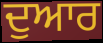
ਦੁਆਰ